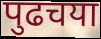
पुढचया